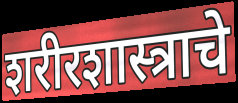
शरीरशास्त्राचे